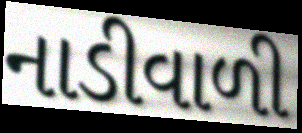
નાડીવાળી